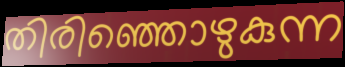
തിരിഞ്ഞൊഴുകുന്ന